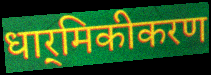
धार्मिकीकरण